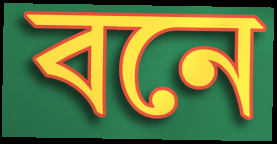
বনে